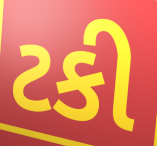
ટકી